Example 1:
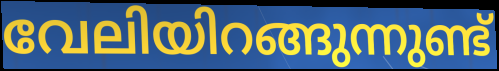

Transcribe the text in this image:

വേലിയിറങ്ങുന്നുണ്ട്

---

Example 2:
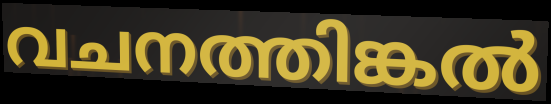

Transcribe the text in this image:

വചനത്തിങ്കൽ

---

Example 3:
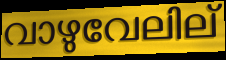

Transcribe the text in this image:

വാഴുവേലില്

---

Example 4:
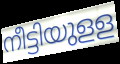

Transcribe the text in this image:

നീട്ടിയുളള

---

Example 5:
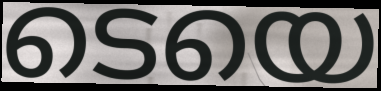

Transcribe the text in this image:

ടെയെ